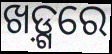
ଖଡ଼୍ଗରେ